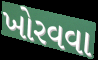
ખોરવવા